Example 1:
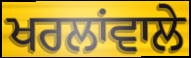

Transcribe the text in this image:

ਖਰਲਾਂਵਾਲੇ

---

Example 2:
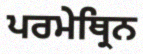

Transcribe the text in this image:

ਪਰਮੇਥ੍ਰਿਨ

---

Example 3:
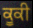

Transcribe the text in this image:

ਕੂਕੀ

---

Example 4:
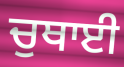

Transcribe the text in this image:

ਚੁਥਾਈ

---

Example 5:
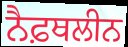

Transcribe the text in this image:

ਨੈਫ਼ਥਲੀਨ